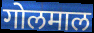
गोलमाल